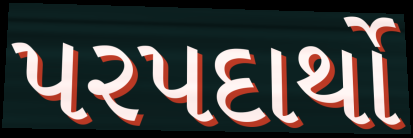
પરપદાર્થો